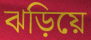
ঝড়িয়ে